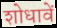
शोधावें